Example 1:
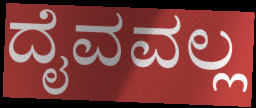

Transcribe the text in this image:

ದೈವವಲ್ಲ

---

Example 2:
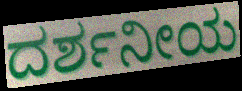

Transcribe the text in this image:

ದರ್ಶನೀಯ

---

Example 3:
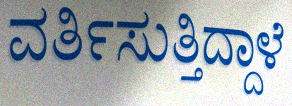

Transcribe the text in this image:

ವರ್ತಿಸುತ್ತಿದ್ದಾಳೆ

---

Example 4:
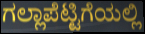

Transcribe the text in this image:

ಗಲ್ಲಾಪೆಟ್ಟಿಗೆಯಲ್ಲಿ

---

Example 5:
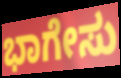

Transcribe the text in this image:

ಭಾಗೇಸು